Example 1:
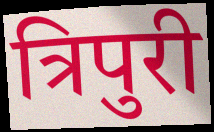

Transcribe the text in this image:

त्रिपुरी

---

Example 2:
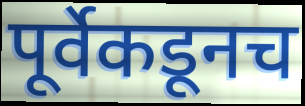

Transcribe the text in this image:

पूर्वेकडूनच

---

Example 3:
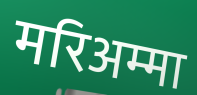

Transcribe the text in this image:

मरिअम्मा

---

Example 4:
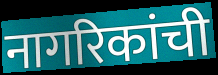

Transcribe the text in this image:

नागरिकांची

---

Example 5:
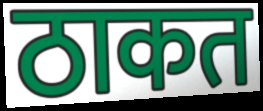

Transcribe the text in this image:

ठाकत